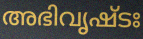
അഭിവൃഷ്ടഃ